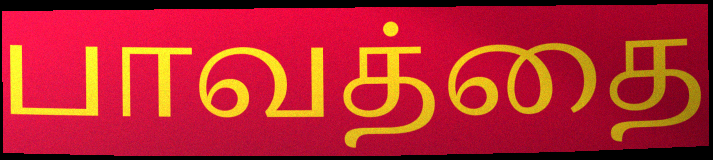
பாவத்தை